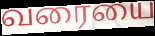
வரையை